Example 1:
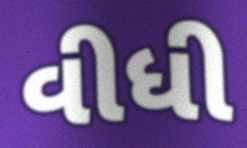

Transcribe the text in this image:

વીધી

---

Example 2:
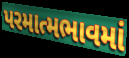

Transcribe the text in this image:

પરમાત્મભાવમાં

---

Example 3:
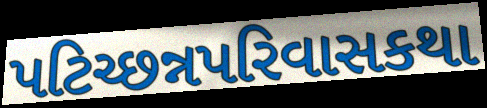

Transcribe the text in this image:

પટિચ્છન્નપરિવાસકથા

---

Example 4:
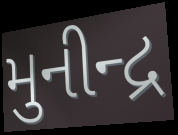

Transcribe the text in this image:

મુનીન્દ્ર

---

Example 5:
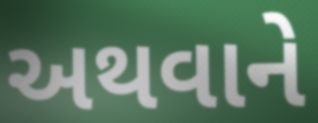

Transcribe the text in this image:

અથવાને